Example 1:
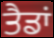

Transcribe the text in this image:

ਤੈਡਾਂ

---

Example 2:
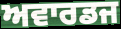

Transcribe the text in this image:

ਅਵਾਰਡਜ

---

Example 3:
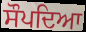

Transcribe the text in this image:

ਸੌਪਦਿਆ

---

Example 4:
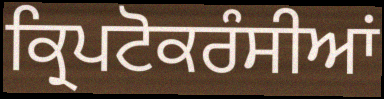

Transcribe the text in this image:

ਕ੍ਰਿਪਟੋਕਰੰਸੀਆਂ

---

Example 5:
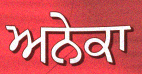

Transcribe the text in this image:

ਅਨੇਕਾ